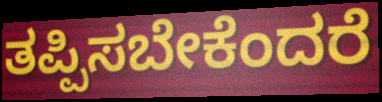
ತಪ್ಪಿಸಬೇಕೆಂದರೆ